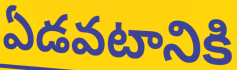
ఏడవటానికి